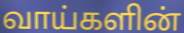
வாய்களின்